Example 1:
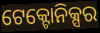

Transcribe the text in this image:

ଟେକ୍ଟୋନିକ୍ସର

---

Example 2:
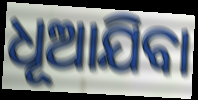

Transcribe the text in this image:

ଧୂଆଯିବା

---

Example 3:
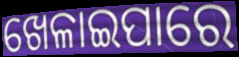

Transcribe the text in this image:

ଖେଳାଇପାରେ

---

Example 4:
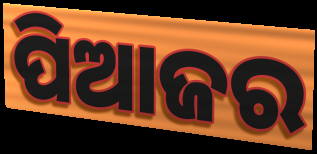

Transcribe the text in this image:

ପିଆଜର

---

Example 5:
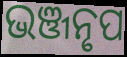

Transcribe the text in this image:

ଭଞ୍ଜନୃପ